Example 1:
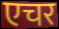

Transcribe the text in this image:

एचर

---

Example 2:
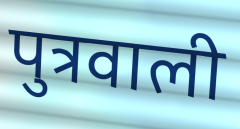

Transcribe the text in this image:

पुत्रवाली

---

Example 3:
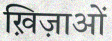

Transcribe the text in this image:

ख़िज़ाओं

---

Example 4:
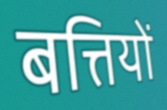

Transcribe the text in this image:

बत्तियों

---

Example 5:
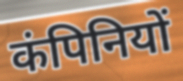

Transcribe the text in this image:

कंपिनियों